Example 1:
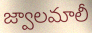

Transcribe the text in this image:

జ్వాలమాలీ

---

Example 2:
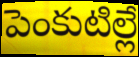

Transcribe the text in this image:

పెంకుటిల్లే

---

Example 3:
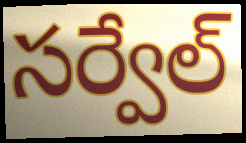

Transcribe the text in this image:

సర్వేల్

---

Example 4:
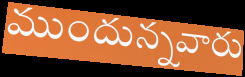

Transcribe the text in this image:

ముందున్నవారు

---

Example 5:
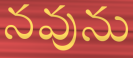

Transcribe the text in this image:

నవును